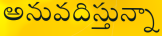
అనువదిస్తున్నా